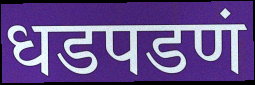
धडपडणं